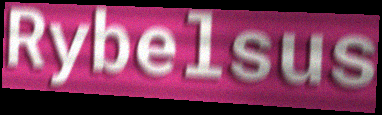
Rybelsus